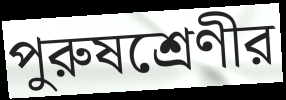
পুরুষশ্রেণীর